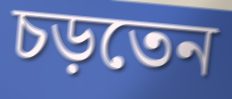
চড়তেন